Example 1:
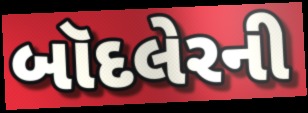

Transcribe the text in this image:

બૉદલેરની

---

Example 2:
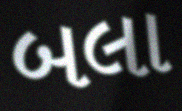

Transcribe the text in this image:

બલા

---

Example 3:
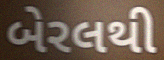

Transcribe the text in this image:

બેરલથી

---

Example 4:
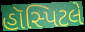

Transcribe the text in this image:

હૉસ્પિટલે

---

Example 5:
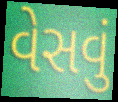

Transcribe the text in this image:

વેસવું